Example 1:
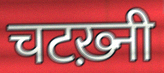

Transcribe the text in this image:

चटख़्नी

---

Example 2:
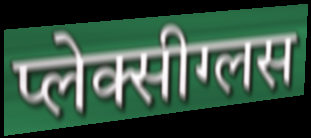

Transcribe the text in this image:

प्लेक्सीग्लस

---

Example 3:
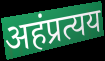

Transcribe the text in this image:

अहंप्रत्यय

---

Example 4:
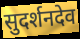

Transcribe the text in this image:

सुदर्शनदेव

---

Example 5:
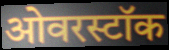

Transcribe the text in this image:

ओवरस्टॉक